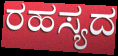
ರಹಸ್ಯದ